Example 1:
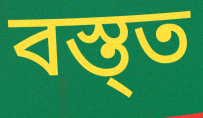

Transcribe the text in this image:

বস্ত্ত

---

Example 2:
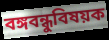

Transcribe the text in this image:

বঙ্গবন্ধুবিষয়ক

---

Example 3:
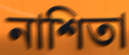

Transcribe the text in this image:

নাশিতা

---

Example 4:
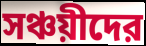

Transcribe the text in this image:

সঞ্চয়ীদের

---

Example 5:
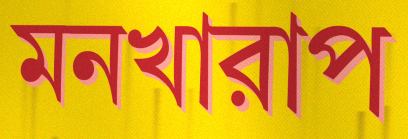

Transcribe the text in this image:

মনখারাপ